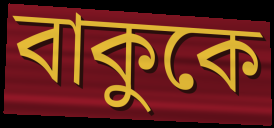
বাকুকে